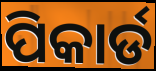
ପିକାର୍ଡ